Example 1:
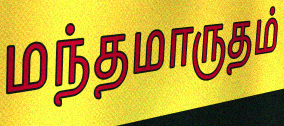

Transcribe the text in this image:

மந்தமாருதம்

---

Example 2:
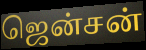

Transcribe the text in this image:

ஜென்சன்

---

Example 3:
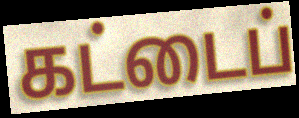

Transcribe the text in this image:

கட்டைப்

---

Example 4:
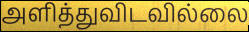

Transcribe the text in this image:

அளித்துவிடவில்லை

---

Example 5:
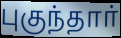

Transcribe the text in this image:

புகுந்தார்